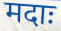
मदाः